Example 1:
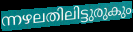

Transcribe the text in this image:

ന്നഴലതിലിട്ടുരുകും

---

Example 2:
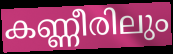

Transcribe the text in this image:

കണ്ണീരിലും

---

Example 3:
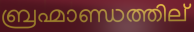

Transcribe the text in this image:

ബ്രഹ്മാണ്ഡത്തില്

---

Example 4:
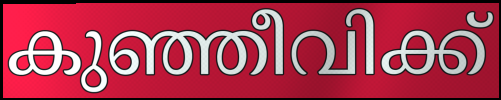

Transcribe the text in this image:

കുഞ്ഞീവിക്ക്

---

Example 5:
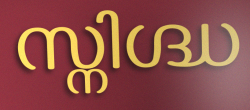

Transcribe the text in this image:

സ്നിഗ്ദ്ധ